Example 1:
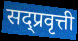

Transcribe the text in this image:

सद्प्रवृत्ती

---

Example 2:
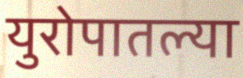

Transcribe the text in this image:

युरोपातल्या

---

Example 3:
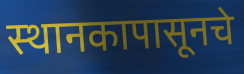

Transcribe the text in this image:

स्थानकापासूनचे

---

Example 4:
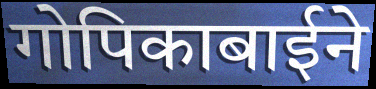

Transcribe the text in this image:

गोपिकाबाईने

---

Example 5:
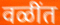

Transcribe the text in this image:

वळींत